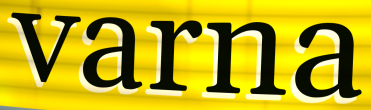
varna